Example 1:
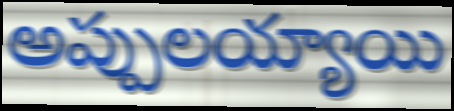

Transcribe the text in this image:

అప్పులయ్యాయి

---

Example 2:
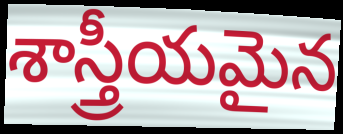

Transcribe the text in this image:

శాస్త్రీయమైన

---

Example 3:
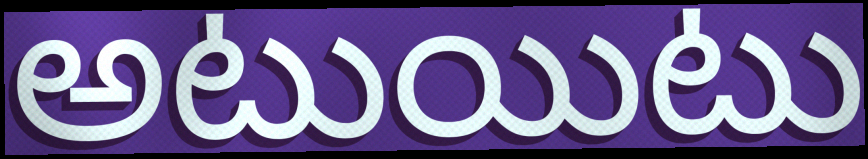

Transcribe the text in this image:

అటుయిటు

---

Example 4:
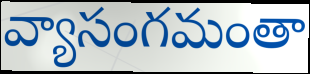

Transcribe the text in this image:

వ్యాసంగమంతా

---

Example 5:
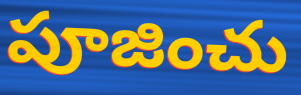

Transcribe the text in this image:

పూజించు